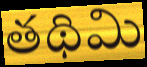
తథిమి